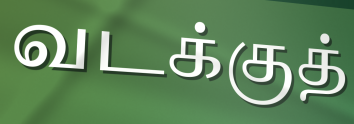
வடக்குத்